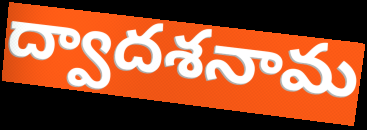
ద్వాదశనామ